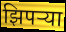
झिपऱ्या